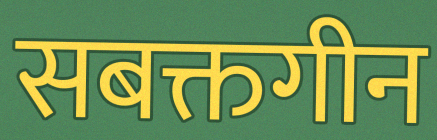
सबक्तगीन